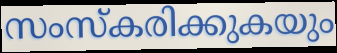
സംസ്കരിക്കുകയും